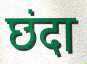
छंदा